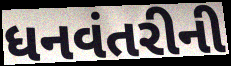
ધનવંતરીની